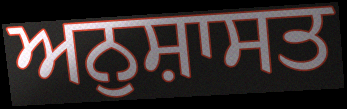
ਅਨੁਸ਼ਾਸਤ